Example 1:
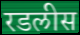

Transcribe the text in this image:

रडलीस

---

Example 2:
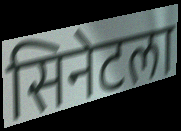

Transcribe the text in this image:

सिनेटला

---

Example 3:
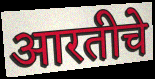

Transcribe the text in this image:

आरतीचे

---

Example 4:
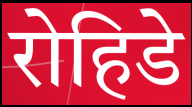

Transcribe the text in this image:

रोहिडे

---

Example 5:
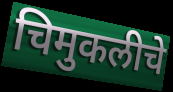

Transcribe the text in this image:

चिमुकलीचे